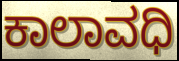
ಕಾಲಾವಧಿ